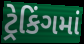
ટ્રેકિંગમાં